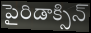
పైరిడాక్సిన్